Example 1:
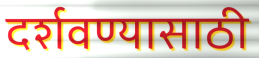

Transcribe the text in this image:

दर्शवण्यासाठी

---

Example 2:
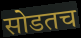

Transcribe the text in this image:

सोडतच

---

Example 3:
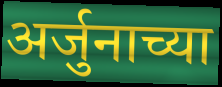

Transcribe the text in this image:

अर्जुनाच्या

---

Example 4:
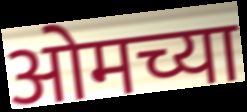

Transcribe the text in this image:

ओमच्या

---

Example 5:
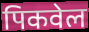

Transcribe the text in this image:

पिकवेल